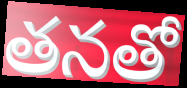
తనతో